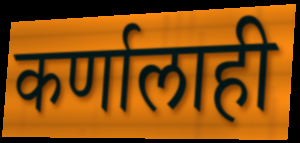
कर्णालाही